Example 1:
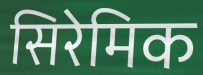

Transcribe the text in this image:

सिरेमिक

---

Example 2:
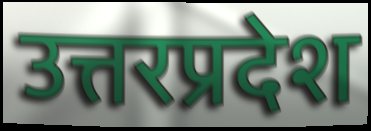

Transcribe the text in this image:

उत्तरप्रदेश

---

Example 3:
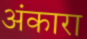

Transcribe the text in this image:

अंकारा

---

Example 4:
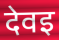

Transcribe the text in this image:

देवइ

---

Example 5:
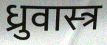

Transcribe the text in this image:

ध्रुवास्त्र